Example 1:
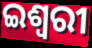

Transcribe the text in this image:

ଇଶ୍ୱରୀ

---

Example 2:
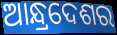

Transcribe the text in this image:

ଆନ୍ଧ୍ରଦେଶର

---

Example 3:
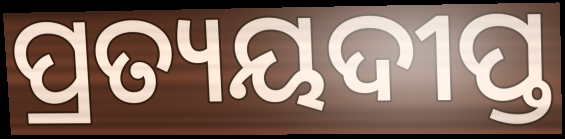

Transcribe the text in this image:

ପ୍ରତ୍ୟୟଦୀପ୍ତ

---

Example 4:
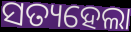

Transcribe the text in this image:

ସତ୍ୟହେଲା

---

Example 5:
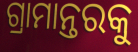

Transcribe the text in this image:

ଗ୍ରାମାନ୍ତରକୁ